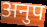
अनुप